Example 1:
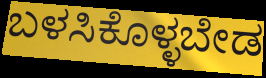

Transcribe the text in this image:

ಬಳಸಿಕೊಳ್ಳಬೇಡ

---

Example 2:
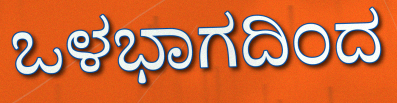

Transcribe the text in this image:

ಒಳಭಾಗದಿಂದ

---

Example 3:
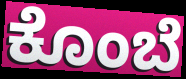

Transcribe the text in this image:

ಕೊಂಬೆ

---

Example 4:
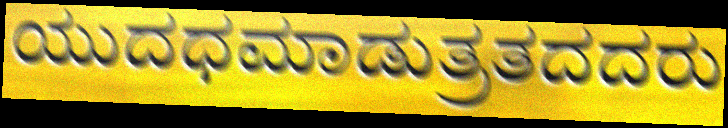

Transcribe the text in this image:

ಯುದಧಮಾಡುತ್ರತದದರು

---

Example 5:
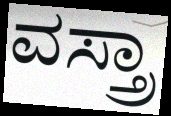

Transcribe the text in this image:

ವಸ್ತ್ರಾ